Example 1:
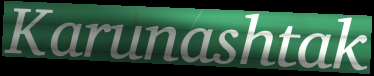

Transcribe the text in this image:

Karunashtak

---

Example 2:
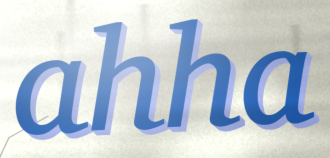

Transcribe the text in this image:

ahha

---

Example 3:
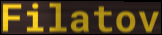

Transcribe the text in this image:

Filatov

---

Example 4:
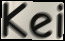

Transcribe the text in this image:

Kei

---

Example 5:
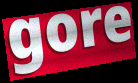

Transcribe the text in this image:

gore